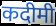
कदीमी